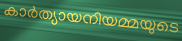
കാർത്യായനിയമ്മയുടെ